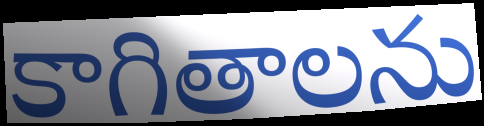
కాగితాలను